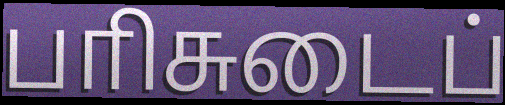
பரிசுடைப்